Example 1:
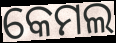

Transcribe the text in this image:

କେମଲ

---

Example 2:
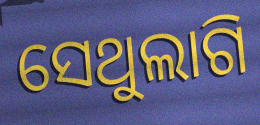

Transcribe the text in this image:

ସେଥୁଲାଗି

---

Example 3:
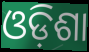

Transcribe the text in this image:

ଓଡ଼ିଶା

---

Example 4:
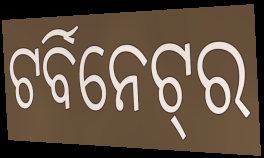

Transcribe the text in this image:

ଟର୍ବିନେଟ୍‌ର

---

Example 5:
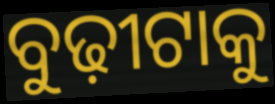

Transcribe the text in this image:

ବୁଢ଼ୀଟାକୁ